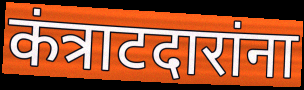
कंत्राटदारांना